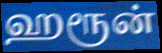
ஹரூன்